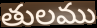
తులము